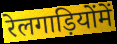
रेलगाड़ियोंमें